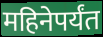
महिनेपर्यंत